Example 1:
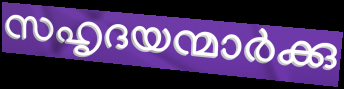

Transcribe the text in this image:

സഹൃദയന്മാർക്കു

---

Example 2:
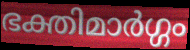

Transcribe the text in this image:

ഭക്തിമാർഗ്ഗം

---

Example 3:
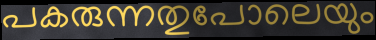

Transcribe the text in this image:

പകരുന്നതുപോലെയും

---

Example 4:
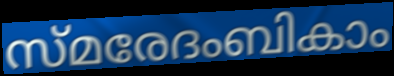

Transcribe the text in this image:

സ്മരേദംബികാം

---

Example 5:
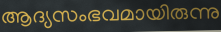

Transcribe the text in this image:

ആദ്യസംഭവമായിരുന്നു